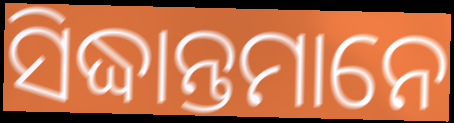
ସିଦ୍ଧାନ୍ତମାନେ